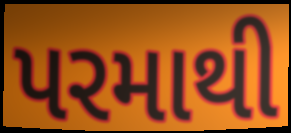
પરમાથી